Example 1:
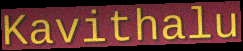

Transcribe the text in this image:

Kavithalu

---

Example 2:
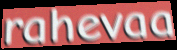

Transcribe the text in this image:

rahevaa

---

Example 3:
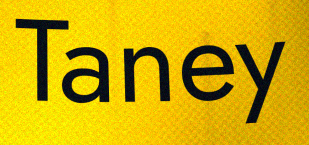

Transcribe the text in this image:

Taney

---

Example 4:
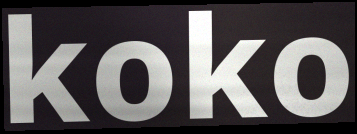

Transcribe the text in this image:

koko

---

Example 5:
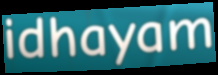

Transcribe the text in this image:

idhayam